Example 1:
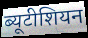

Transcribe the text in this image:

ब्यूटीशियन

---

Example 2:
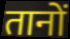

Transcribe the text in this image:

तानों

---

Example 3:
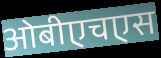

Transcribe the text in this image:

ओबीएचएस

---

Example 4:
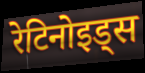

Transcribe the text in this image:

रेटिनोइड्स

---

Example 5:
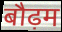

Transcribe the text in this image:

बौढ़म